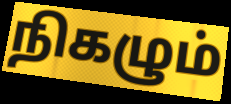
நிகழும்